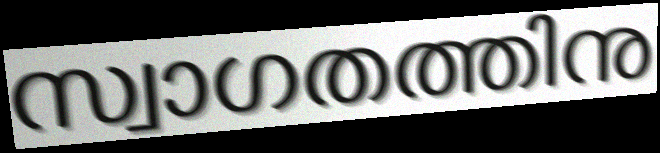
സ്വാഗതത്തിനു